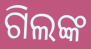
ଗିଲଙ୍କ